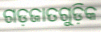
ଗଡ଼ଜାତଗୁଡ଼ିକ